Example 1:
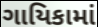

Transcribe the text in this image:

ગાયિકામાં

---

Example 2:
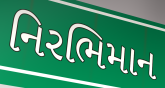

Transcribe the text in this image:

નિરભિમાન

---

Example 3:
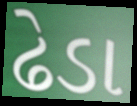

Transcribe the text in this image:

ઢેડા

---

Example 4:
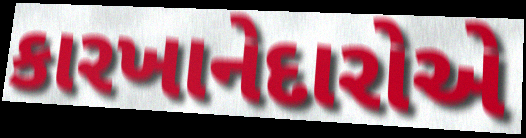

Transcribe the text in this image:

કારખાનેદારોએ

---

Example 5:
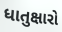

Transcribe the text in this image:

ધાતુક્ષારો